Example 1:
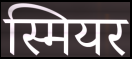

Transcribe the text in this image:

स्मियर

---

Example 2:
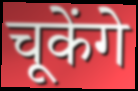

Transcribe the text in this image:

चूकेंगे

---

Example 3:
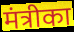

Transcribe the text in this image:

मंत्रीका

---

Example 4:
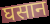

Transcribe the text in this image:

घसान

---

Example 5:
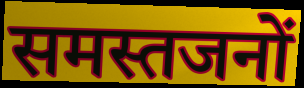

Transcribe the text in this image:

समस्तजनों